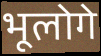
भूलोगे